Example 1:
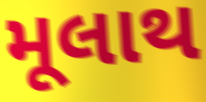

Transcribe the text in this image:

મૂલાથ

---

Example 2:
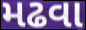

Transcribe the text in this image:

મઢવા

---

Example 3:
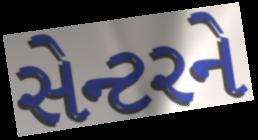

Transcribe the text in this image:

સેન્ટરને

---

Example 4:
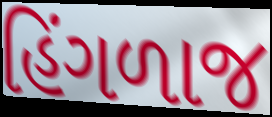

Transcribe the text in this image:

હિંગળાજ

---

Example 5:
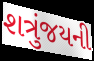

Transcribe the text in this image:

શત્રુંજયની